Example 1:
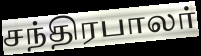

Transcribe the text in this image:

சந்திரபாலர்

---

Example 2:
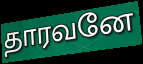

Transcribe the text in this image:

தாரவனே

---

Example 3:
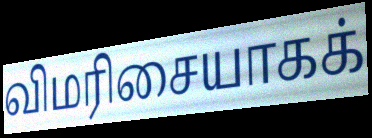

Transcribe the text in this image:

விமரிசையாகக்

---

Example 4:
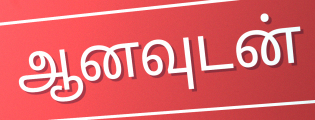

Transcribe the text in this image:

ஆனவுடன்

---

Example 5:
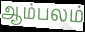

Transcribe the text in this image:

ஆம்பலம்